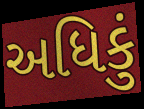
અધિકું